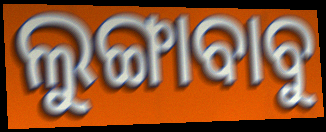
ଲୁଙ୍ଗାବାବୁ